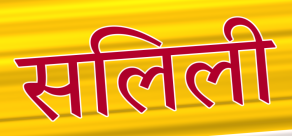
सलिली